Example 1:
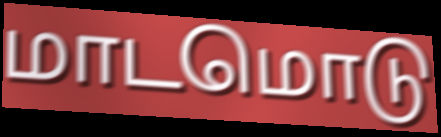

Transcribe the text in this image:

மாடமொடு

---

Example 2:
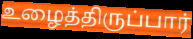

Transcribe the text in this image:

உழைத்திருப்பார்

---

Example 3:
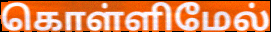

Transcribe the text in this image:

கொள்ளிமேல்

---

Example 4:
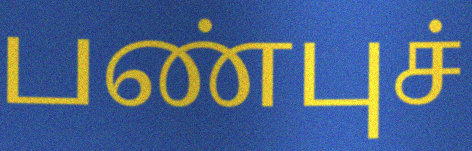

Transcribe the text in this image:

பண்புச்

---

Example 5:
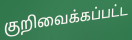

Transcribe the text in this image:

குறிவைக்கப்பட்ட